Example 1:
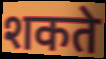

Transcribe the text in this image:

शकते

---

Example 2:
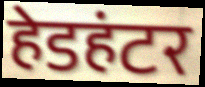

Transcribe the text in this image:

हेडहंटर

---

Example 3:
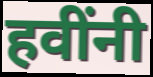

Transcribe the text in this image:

हवींनी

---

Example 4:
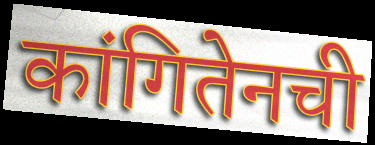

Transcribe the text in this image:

कांगितेनची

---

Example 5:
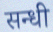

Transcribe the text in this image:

सन्धी